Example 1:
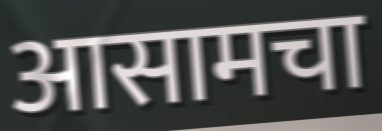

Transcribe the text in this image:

आसामचा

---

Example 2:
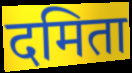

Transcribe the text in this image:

दमिता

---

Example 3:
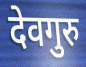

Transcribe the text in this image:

देवगुरु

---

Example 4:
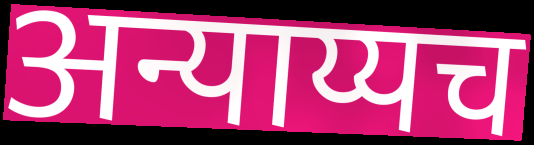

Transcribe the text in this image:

अन्याय्यच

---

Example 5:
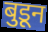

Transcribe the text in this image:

बुडून